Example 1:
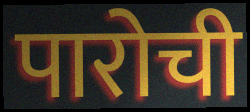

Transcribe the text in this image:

पारोची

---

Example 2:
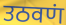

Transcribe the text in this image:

उठवणं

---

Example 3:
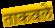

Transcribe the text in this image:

ताकवले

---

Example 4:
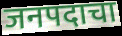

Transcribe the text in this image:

जनपदाचा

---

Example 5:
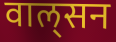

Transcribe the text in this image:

वाल्सन